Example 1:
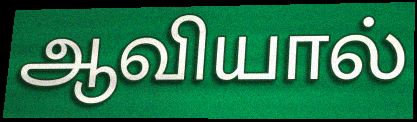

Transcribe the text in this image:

ஆவியால்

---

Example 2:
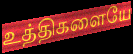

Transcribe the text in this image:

உத்திகளையே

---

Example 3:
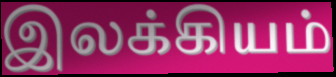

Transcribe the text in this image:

இலக்கியம்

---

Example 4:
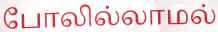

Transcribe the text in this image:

போலில்லாமல்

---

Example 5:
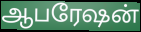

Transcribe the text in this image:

ஆபரேஷன்